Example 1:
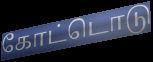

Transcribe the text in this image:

கோட்டொடு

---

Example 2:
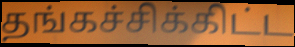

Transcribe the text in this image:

தங்கச்சிக்கிட்ட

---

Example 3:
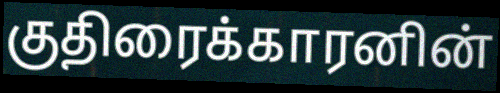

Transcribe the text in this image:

குதிரைக்காரனின்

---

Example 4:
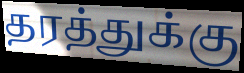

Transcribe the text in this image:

தரத்துக்கு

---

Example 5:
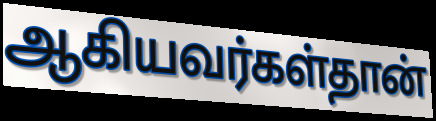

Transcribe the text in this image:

ஆகியவர்கள்தான்